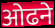
ओढने